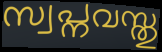
സ്വപ്നവസ്തു